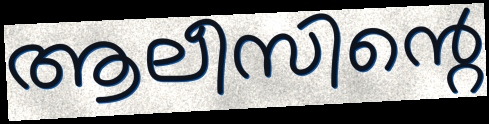
ആലീസിന്റെ